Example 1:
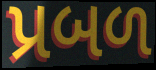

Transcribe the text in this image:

પ્રબળ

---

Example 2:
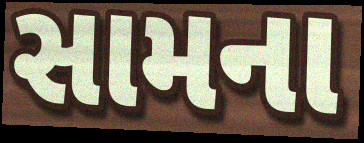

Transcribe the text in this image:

સામના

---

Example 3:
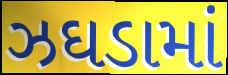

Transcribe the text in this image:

ઝઘડામાં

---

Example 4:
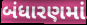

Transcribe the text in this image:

બંધારણમાં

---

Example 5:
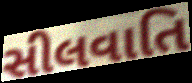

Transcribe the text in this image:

સીલવાતિ